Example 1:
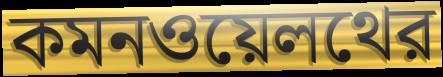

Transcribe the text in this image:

কমনওয়েলথের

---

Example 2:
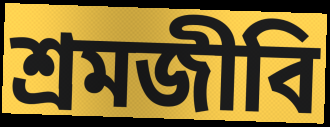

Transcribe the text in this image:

শ্রমজীবি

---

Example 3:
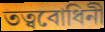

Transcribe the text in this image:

তত্ববোধিনী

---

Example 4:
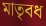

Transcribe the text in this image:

মাতৃবধ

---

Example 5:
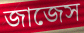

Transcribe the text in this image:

জাজেস